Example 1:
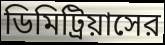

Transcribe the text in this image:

ডিমিট্রিয়াসের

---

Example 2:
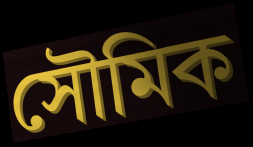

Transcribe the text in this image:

সৌমিক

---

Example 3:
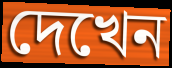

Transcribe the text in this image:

দেখেন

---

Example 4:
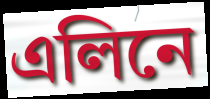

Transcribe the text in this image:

এলিনে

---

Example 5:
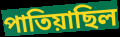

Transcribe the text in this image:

পাতিয়াছিল